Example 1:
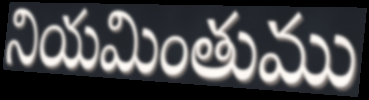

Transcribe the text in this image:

నియమింతుము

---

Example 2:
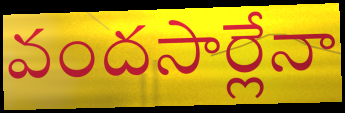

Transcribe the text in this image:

వందసార్లేనా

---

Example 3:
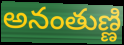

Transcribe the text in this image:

అనంతుణ్ణి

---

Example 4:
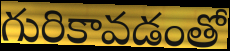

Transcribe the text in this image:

గురికావడంతో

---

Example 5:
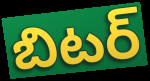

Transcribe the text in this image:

బిటర్